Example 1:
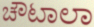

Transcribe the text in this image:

ಚೌಟಾಲಾ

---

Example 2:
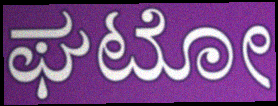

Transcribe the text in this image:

ಘಟೋ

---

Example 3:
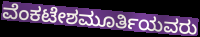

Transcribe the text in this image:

ವೆಂಕಟೇಶಮೂರ್ತಿಯವರು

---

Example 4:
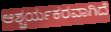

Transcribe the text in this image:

ಆಶ್ಚರ್ಯಕರವಾಗಿದೆ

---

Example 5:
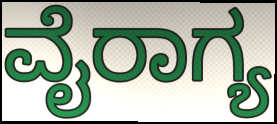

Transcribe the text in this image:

ವೈರಾಗ್ಯ